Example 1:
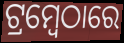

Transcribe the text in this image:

ଟ୍ରମ୍ବେଠାରେ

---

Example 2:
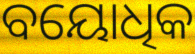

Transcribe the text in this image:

ବୟୋଧିକ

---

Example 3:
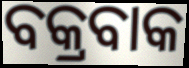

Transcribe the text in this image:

ବକ୍ରବାକ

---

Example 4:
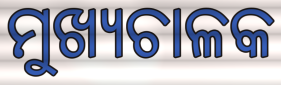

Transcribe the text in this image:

ମୁଖ୍ୟଚାଳକ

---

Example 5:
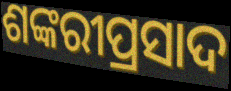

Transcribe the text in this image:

ଶଙ୍କରୀପ୍ରସାଦ